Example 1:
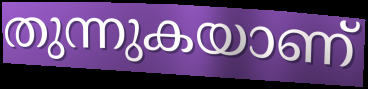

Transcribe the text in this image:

തുന്നുകയാണ്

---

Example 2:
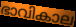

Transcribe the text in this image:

ഭാവികാല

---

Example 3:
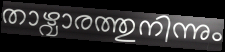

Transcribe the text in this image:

താഴ്വാരത്തുനിന്നും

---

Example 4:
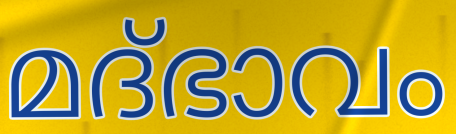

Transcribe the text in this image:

മദ്ഭാവം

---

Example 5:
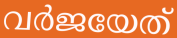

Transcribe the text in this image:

വർജയേത്